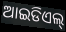
ଆଇଡିଏଲ୍